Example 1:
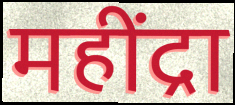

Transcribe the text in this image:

महींद्रा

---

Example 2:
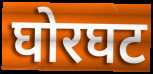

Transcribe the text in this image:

घोरघट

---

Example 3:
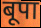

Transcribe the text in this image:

बूपा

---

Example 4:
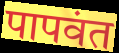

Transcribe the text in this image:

पापवंत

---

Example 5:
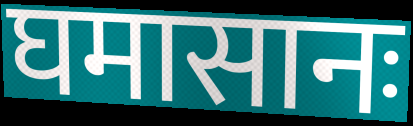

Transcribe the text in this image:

घमासानः